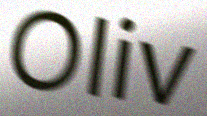
Oliv